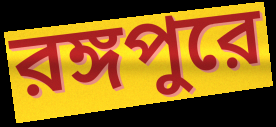
রঙ্গপুরে